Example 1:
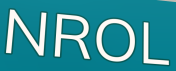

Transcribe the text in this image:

NROL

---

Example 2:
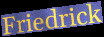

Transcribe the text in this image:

Friedrick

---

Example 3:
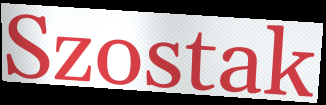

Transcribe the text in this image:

Szostak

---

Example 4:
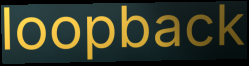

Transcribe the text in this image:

loopback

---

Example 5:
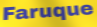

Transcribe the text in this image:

Faruque